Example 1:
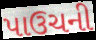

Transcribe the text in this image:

પાઉચની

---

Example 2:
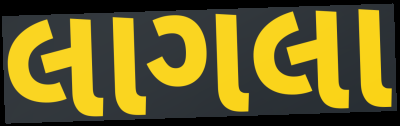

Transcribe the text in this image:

લાગલા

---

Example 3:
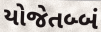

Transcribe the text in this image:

યોજેતબ્બં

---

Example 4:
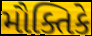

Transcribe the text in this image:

મૌક્તિકે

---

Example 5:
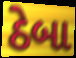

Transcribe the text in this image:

ઠેબા